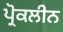
ਪ੍ਰੋਕਲੀਨ